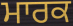
ਮਾਰਕ